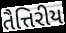
તૈત્તિરીય